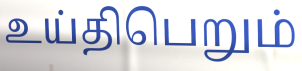
உய்திபெறும்